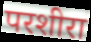
परशीरा